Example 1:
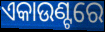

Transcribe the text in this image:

ଏକାଉଣ୍ଟରେ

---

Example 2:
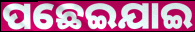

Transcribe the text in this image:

ପଛେଇଯାଇ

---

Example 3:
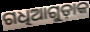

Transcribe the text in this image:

ଗଧିଆଗୁଡ଼ାକ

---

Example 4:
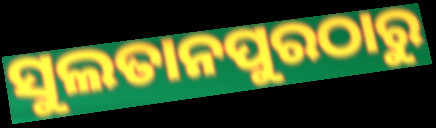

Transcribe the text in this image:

ସୁଲତାନପୁରଠାରୁ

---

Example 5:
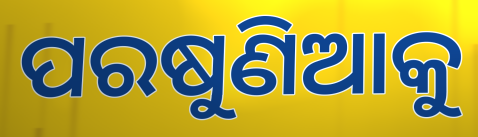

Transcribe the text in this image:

ପରଷୁଣିଆକୁ